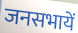
जनसभायें